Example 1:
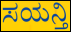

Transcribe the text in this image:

ಸಯನ್ತಿ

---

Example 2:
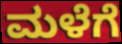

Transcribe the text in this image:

ಮಳೆಗೆ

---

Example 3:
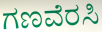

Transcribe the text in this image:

ಗಣವೆರಸಿ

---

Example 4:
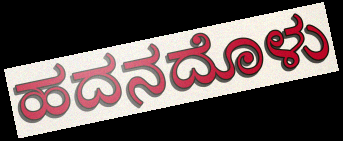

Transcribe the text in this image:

ಹದನದೊಳು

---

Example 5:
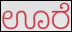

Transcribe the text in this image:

ಊರೆ